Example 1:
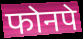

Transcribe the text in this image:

फोनपे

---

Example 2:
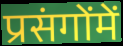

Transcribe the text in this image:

प्रसंगोंमें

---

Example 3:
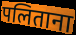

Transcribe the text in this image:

पलिताना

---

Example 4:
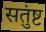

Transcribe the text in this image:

सतुंष्ट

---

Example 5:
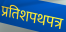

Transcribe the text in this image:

प्रतिशपथपत्र